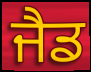
ਜੈਡ